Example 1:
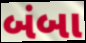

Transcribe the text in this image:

બંબા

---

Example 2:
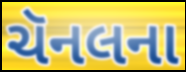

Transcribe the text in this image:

ચૅનલના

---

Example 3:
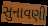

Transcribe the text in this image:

સુનાવણી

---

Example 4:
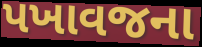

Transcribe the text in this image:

પખાવજના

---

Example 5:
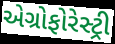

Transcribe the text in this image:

એગ્રોફોરેસ્ટ્રી